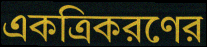
একত্রিকরণের